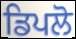
ਡਿਪਲੋ